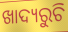
ଖାଦ୍ୟରୁଚି